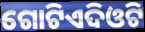
ଗୋଟିଏଦିଓଟି